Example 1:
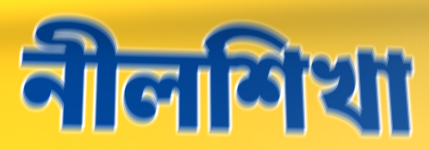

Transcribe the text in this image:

নীলশিখা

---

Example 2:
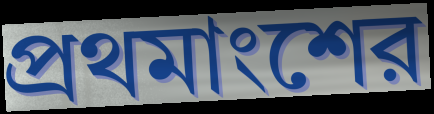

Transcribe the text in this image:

প্রথমাংশের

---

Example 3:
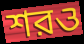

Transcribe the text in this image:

শরও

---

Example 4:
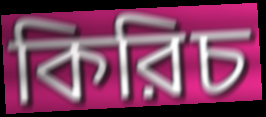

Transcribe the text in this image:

কিরিচ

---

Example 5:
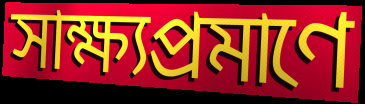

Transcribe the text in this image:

সাক্ষ্যপ্রমাণে